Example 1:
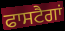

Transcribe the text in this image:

ਫਾਸਟੈਗਾਂ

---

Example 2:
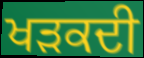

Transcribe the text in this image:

ਖੜਕਦੀ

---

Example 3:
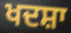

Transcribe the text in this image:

ਖਦਸ਼ਾ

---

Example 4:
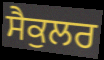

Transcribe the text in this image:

ਸੈਕੁਲਰ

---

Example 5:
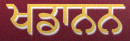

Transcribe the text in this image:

ਖਡਾਨਨ